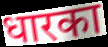
धारका